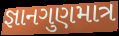
જ્ઞાનગુણમાત્ર